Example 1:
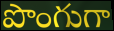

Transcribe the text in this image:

పొంగుగా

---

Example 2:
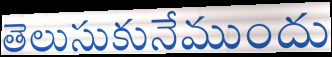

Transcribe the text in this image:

తెలుసుకునేముందు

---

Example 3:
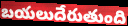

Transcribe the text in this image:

బయలుదేరుతుంది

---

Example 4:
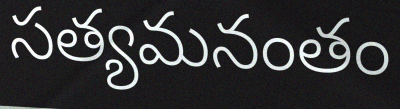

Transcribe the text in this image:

సత్యమనంతం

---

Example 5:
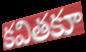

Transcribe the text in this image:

కవితకూ